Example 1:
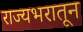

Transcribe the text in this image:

राज्यभरातून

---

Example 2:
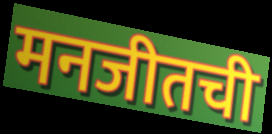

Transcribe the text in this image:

मनजीतची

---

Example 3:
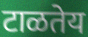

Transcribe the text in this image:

टाळतेय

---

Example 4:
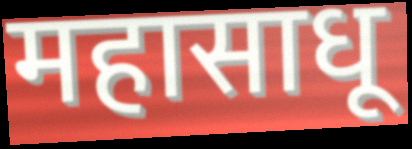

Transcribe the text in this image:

महासाधू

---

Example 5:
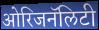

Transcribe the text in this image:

ओरिजनॅलिटी